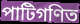
পাটিগণিত